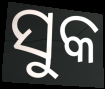
ସୁକ